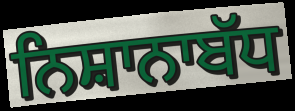
ਨਿਸ਼ਾਨਾਬੱਧ